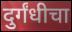
दुर्गंधीचा